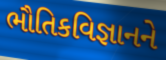
ભૌતિકવિજ્ઞાનને